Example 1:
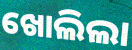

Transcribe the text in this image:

ଖୋଲିଲା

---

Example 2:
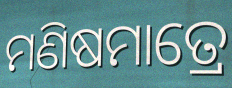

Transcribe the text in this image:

ମଣିଷମାତ୍ରେ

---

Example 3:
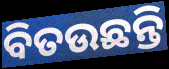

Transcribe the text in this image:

ବିତଉଛନ୍ତି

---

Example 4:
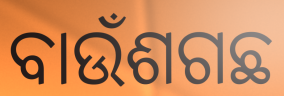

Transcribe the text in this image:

ବାଉଁଶଗଛ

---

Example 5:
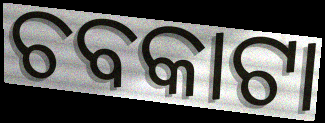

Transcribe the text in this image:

ଚବକାଟା